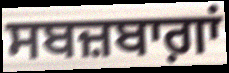
ਸਬਜ਼ਬਾਗ਼ਾਂ